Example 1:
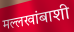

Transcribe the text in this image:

मल्लखांबाशी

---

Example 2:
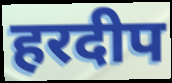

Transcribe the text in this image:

हरदीप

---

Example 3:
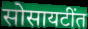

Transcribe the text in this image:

सोसायटींत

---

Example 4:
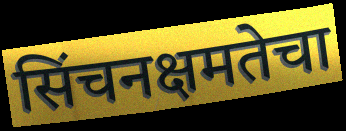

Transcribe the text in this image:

सिंचनक्षमतेचा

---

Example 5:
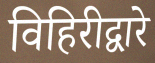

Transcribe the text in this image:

विहिरीद्वारे